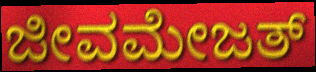
ಜೀವಮೇಜತ್